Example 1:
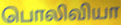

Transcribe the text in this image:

பொலிவியா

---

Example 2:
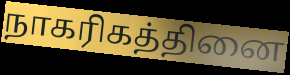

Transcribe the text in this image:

நாகரிகத்தினை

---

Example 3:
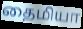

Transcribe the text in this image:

தைமியா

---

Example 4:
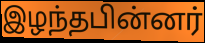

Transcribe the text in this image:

இழந்தபின்னர்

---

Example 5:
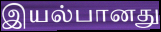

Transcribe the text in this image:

இயல்பானது